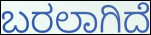
ಬರಲಾಗಿದೆ